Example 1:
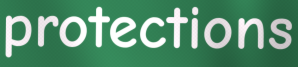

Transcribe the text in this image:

protections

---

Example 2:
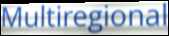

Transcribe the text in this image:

Multiregional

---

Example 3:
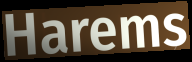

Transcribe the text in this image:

Harems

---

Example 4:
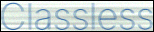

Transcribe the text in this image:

Classless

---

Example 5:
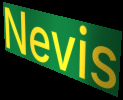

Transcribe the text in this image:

Nevis